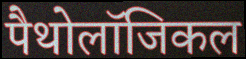
पैथोलॉजिकल